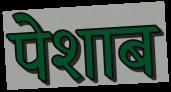
पेशाब